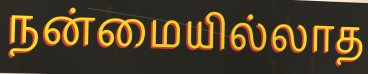
நன்மையில்லாத